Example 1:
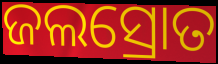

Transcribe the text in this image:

ଜଲସ୍ରୋତ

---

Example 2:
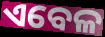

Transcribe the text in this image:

ଏବେଳ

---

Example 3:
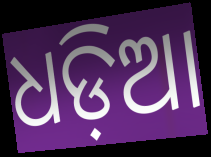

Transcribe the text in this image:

ଧଡ଼ିଆ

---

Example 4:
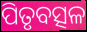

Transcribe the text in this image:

ପିତୃବତ୍ସଳ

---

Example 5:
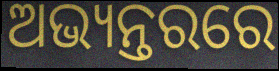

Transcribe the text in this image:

ଅଭ୍ୟନ୍ତରରେ